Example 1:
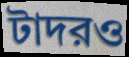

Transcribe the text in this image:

টাদরও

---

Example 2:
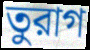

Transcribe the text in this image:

তুরাগ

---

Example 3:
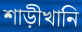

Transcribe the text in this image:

শাড়ীখানি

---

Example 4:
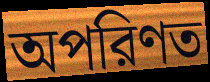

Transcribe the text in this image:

অপরিণত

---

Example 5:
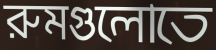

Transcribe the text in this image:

রুমগুলোতে